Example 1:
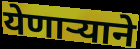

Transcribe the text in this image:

येणाऱ्याने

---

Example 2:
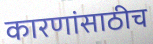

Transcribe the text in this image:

कारणांसाठीच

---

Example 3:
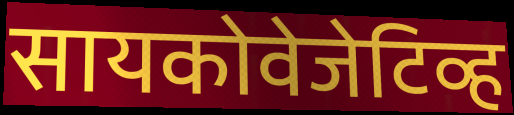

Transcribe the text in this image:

सायकोवेजेटिव्ह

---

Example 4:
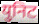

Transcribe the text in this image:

युनिट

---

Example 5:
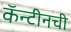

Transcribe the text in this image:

कॅन्टीनची